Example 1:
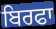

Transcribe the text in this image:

ਬਿਰਫਾ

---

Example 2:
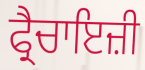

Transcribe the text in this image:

ਫ੍ਰੈਚਾਇਜ਼ੀ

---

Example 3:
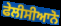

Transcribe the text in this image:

ਫੇਲੀਸੀਆਨੋ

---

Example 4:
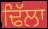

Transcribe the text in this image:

ਢਿੱਲਾ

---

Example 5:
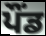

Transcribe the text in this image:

ਪੌਂਡ